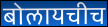
बोलायचीच